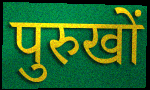
पुरुखों